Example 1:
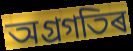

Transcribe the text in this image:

অগ্ৰগতিৰ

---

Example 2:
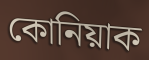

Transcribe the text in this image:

কোনিয়াক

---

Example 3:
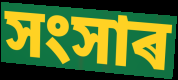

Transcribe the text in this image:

সংসাৰ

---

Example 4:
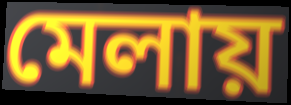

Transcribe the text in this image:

মেলায়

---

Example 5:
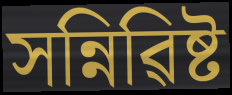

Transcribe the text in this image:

সন্নিৱিষ্ট